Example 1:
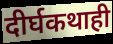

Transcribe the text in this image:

दीर्घकथाही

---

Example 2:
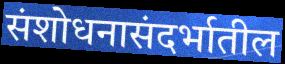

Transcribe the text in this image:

संशोधनासंदर्भातील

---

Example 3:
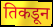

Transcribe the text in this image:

तिकडून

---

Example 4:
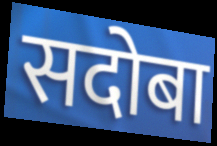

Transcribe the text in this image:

सदोबा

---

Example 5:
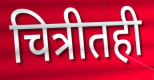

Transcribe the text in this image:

चित्रीतही